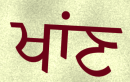
ਖਾਂਣ